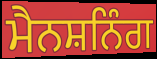
ਮੈਨਸ਼ਨਿੰਗ